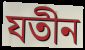
যতীন